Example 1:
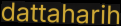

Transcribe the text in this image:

dattaharih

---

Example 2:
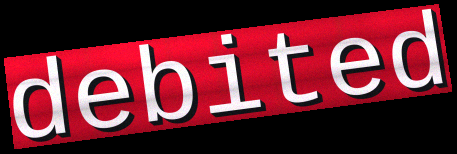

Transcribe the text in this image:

debited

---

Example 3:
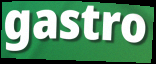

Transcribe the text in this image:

gastro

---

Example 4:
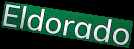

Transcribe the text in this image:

Eldorado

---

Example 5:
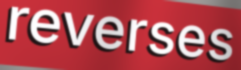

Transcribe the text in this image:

reverses